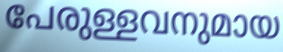
പേരുള്ളവനുമായ